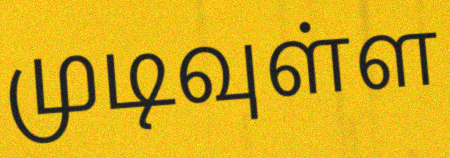
முடிவுள்ள